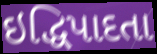
ઇદ્ધિપાદતા